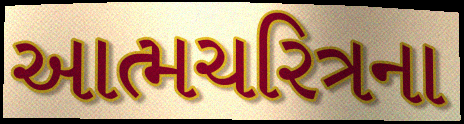
આત્મચરિત્રના